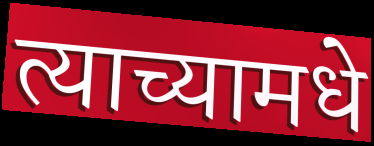
त्याच्यामधे